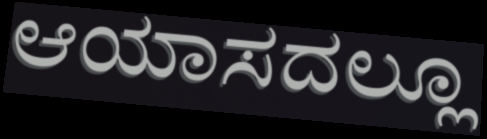
ಆಯಾಸದಲ್ಲೂ